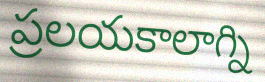
ప్రలయకాలాగ్ని